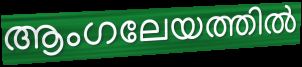
ആംഗലേയത്തിൽ